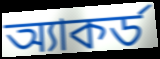
অ্যাকর্ড